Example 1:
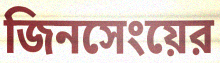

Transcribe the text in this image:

জিনসেংয়ের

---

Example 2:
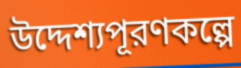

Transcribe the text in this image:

উদ্দেশ্যপূরণকল্পে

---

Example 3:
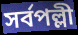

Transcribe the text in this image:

সর্বপল্লী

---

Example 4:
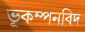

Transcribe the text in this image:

ভূকম্পনবিদ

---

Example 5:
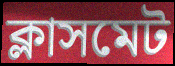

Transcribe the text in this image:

ক্লাসমেট